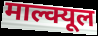
माल्क्यूल